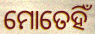
ମୋତେହିଁ